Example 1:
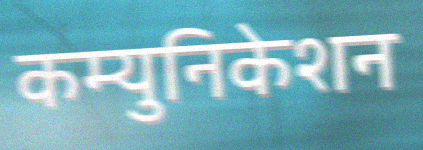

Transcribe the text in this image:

कम्युनिकेशन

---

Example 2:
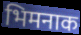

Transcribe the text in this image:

भिमनाक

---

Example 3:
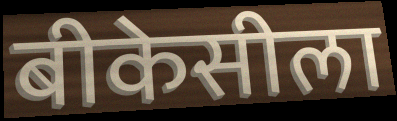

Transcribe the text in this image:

बीकेसीला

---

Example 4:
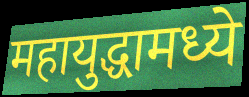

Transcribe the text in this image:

महायुद्धामध्ये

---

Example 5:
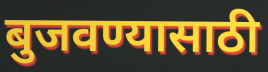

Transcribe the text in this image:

बुजवण्यासाठी